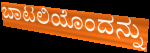
ಬಾಟಲಿಯೊಂದನ್ನು